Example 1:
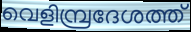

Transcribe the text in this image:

വെളിമ്പ്രദേശത്ത്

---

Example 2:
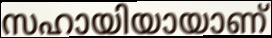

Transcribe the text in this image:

സഹായിയായാണ്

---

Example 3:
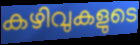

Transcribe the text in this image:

കഴിവുകളുടെ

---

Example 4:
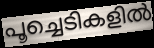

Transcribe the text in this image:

പൂച്ചെടികളിൽ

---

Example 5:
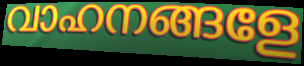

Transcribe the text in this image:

വാഹനങ്ങളേ